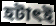
হটাৎই